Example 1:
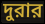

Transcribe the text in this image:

দুরার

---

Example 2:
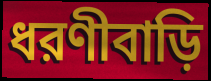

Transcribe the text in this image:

ধরণীবাড়ি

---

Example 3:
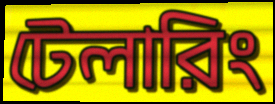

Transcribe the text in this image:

টেলারিং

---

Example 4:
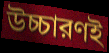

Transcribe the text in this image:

উচ্চারণই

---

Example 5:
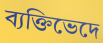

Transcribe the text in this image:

ব্যক্তিভেদে